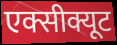
एक्सीक्यूट